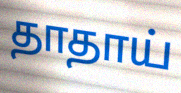
தாதாய்